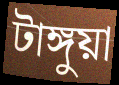
টাঙ্গুয়া